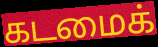
கடமைக்